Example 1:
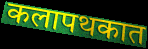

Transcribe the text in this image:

कलापथकात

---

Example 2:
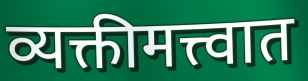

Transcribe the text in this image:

व्यक्तीमत्त्वात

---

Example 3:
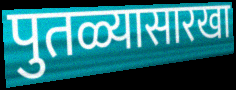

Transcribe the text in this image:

पुतळ्यासारखा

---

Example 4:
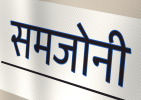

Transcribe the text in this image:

समजोनी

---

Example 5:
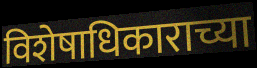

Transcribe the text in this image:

विशेषाधिकाराच्या